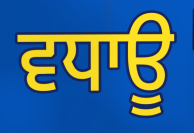
ਵਧਾਊ